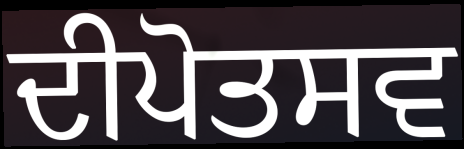
ਦੀਪੋਤਸਵ